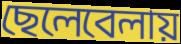
ছেলেবেলায়